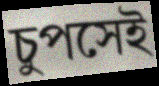
চুপসেই